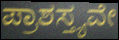
ಪ್ರಾಶಸ್ತ್ಯವೇ